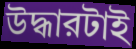
উদ্ধারটাই